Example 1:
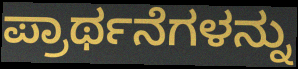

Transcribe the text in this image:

ಪ್ರಾರ್ಥನೆಗಳನ್ನು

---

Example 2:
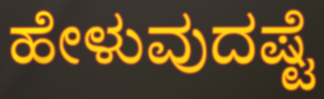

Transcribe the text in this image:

ಹೇಳುವುದಷ್ಟೆ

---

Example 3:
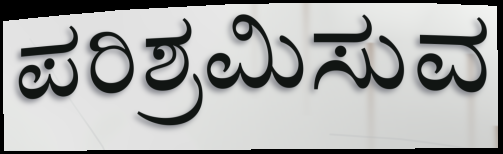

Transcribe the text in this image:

ಪರಿಶ್ರಮಿಸುವ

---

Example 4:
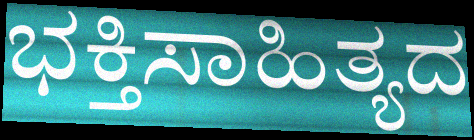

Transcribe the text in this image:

ಭಕ್ತಿಸಾಹಿತ್ಯದ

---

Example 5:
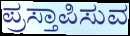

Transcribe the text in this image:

ಪ್ರಸ್ತಾಪಿಸುವ